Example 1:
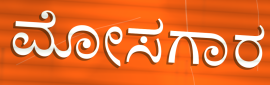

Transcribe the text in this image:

ಮೋಸಗಾರ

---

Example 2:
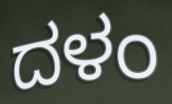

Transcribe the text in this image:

ದಳಂ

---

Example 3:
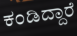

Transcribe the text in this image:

ಕಂಡಿದ್ದಾರೆ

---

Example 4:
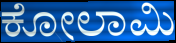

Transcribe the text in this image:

ಕೋಲಾಮಿ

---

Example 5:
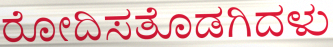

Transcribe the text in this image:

ರೋದಿಸತೊಡಗಿದಳು